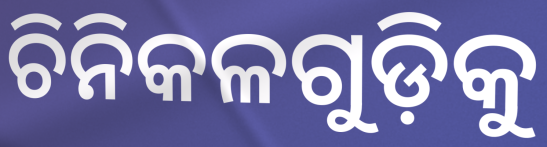
ଚିନିକଳଗୁଡ଼ିକୁ